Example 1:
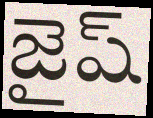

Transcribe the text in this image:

జైష్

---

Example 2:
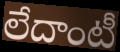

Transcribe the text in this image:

లేదాంటీ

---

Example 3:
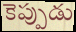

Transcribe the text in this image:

కెప్పుడు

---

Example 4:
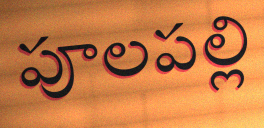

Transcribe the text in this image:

పూలపల్లి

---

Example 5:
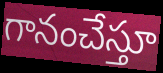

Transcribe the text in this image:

గానంచేస్తూ